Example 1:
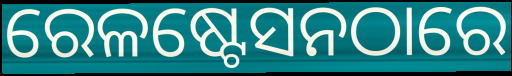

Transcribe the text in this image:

ରେଳଷ୍ଟେସନଠାରେ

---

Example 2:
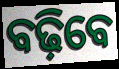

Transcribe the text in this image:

ବଢ଼ିବେ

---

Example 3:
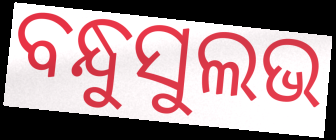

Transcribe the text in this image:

ବନ୍ଧୁସୁଲଭ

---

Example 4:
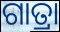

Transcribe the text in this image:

ଗାତ୍ରା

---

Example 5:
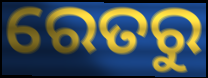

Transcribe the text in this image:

ରେତରୁ